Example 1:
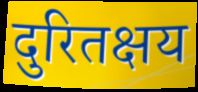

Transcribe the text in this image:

दुरितक्षय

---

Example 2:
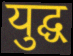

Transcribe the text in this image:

युद्घ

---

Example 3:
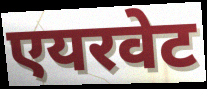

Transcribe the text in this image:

एयरवेट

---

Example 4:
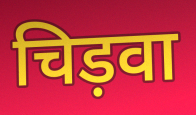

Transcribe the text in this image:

चिड़वा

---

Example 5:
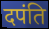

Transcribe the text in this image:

दपंति